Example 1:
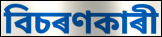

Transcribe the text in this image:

বিচৰণকাৰী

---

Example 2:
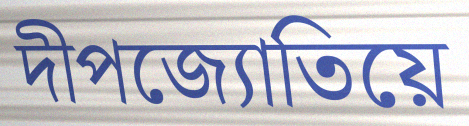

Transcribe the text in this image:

দীপজ্যোতিয়ে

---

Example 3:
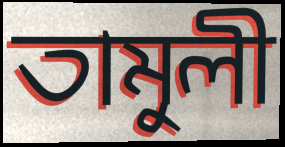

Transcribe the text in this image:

তামুলী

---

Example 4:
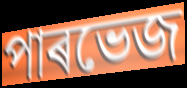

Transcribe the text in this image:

পাৰভেজ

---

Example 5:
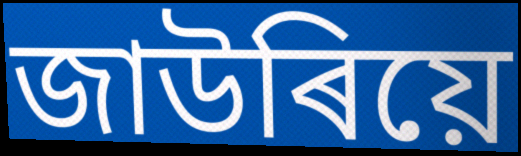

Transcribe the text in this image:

জাউৰিয়ে